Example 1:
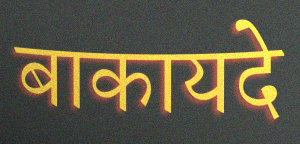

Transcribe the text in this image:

बाकायदे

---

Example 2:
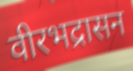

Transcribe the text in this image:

वीरभद्रासन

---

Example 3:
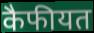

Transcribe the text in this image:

कैफीयत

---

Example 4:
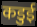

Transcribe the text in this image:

कडुई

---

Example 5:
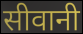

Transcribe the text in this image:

सीवानी